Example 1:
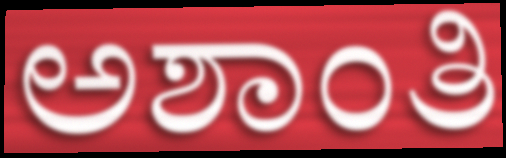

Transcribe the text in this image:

ಅಶಾಂತಿ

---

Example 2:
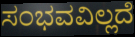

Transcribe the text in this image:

ಸಂಭವವಿಲ್ಲದೆ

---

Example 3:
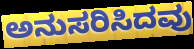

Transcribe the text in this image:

ಅನುಸರಿಸಿದವು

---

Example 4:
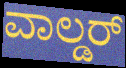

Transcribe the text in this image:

ವಾಲ್ಡರ್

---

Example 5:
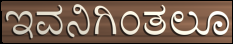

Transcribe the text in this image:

ಇವನಿಗಿಂತಲೂ